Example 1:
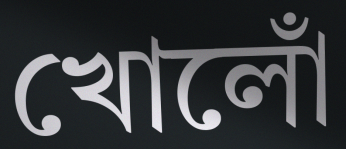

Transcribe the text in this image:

খোলোঁ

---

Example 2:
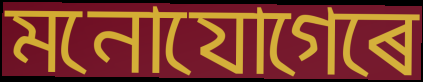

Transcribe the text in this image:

মনোযোগেৰে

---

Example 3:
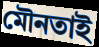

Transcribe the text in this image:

মৌনতাই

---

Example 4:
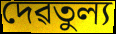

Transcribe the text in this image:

দেৱতুল্য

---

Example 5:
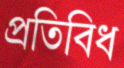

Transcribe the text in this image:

প্ৰতিবিধ